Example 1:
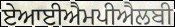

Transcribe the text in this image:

ਏਆਈਐਮਪੀਐਲਬੀ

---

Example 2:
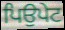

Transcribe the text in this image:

ਪਿਉਪੇਟ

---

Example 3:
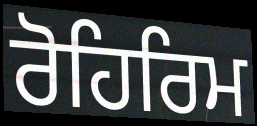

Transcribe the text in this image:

ਰੋਹਿਰਿਮ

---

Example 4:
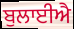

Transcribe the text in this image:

ਬੁਲਾਈਐ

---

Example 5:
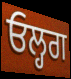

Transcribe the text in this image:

ਓਲ੍ਹਗ